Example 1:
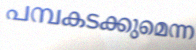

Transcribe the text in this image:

പമ്പകടക്കുമെന്ന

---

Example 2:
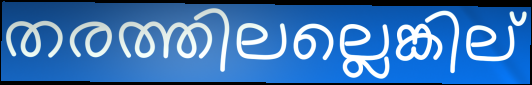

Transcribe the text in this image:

തരത്തിലല്ലെങ്കില്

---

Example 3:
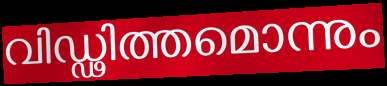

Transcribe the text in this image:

വിഡ്ഢിത്തമൊന്നും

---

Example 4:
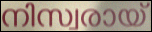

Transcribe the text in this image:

നിസ്വരായ്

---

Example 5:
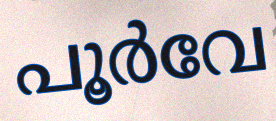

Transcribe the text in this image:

പൂർവേ